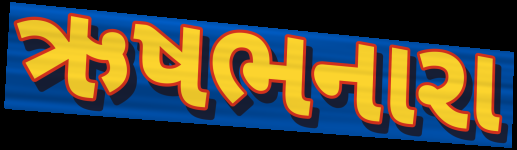
ઋષભનારા